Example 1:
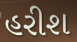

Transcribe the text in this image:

હરીશ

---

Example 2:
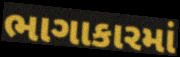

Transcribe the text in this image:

ભાગાકારમાં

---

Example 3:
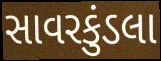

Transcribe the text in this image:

સાવરકુંડલા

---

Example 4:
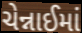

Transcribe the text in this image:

ચેન્નાઈમાં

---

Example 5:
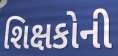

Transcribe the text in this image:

શિક્ષકોની